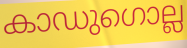
കാഡുഗൊല്ല